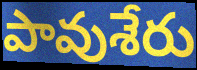
పావుశేరు